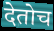
देतोच